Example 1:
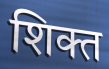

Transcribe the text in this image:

शिक्त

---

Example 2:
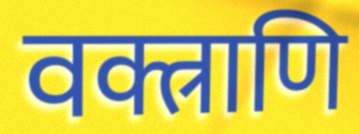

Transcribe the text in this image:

वक्त्राणि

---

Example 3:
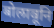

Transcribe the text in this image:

बोलावूनि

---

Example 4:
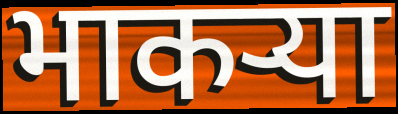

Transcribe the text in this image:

भाकर्‍या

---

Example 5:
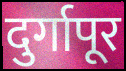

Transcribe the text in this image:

दुर्गापूर